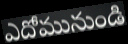
ఎదోమునుండి